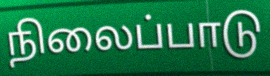
நிலைப்பாடு